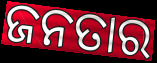
ଜନତାର